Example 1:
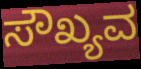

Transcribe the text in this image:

ಸೌಖ್ಯವ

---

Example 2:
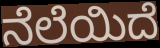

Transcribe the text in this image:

ನೆಲೆಯಿದೆ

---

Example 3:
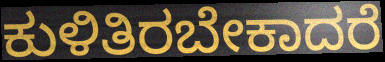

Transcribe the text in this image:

ಕುಳಿತಿರಬೇಕಾದರೆ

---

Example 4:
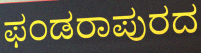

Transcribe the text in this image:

ಫಂಡರಾಪುರದ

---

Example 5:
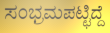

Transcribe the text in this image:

ಸಂಭ್ರಮಪಟ್ಟಿದ್ದೆ